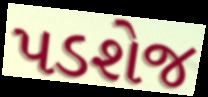
પડશેજ